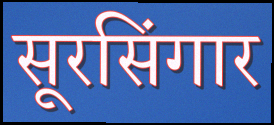
सूरसिंगार